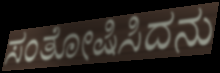
ಸಂತೋಷಿಸಿದನು